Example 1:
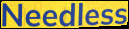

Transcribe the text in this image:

Needless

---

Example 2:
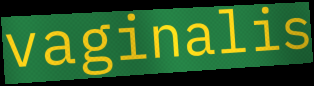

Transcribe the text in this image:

vaginalis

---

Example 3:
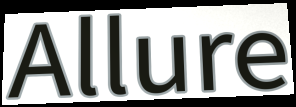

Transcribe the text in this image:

Allure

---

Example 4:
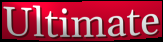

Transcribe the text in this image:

Ultimate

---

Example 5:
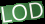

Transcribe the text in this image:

LOD